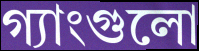
গ্যাংগুলো